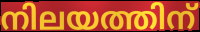
നിലയത്തിന്